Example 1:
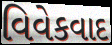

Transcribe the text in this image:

વિવેકવાદ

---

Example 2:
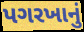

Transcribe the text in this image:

પગરખાનું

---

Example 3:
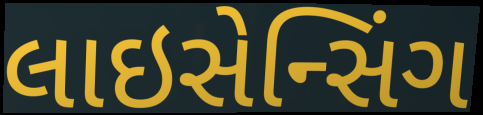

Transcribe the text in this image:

લાઇસેન્સિંગ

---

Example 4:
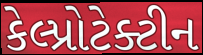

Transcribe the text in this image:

કેલ્પ્રોટેક્ટીન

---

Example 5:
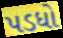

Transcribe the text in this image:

પડધો